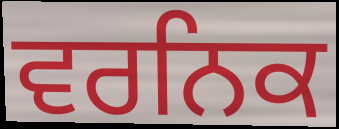
ਵਰਨਿਕ